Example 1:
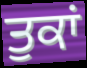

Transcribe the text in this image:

ਤੁਕਾਂ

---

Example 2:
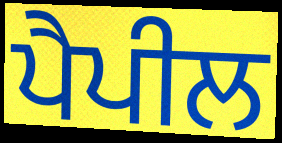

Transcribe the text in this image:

ਪੈਪੀਲ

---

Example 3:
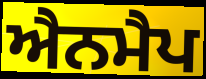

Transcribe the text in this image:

ਐਨਮੈਪ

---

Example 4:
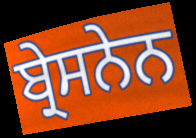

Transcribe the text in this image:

ਬ੍ਰੇਸਨੇਨ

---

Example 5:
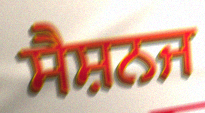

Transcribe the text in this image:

ਸੈਸ਼ਨਜ